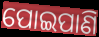
ପୋଇପାଣି